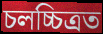
চলচ্চিত্ৰত